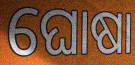
ଘୋଷା